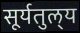
सूर्यतुल्य